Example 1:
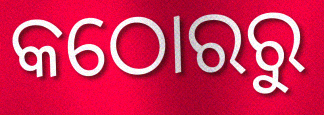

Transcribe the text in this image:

କଠୋରରୁ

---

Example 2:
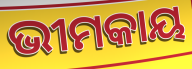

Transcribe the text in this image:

ଭୀମକାୟ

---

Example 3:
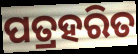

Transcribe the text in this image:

ପତ୍ରହରିତ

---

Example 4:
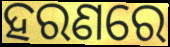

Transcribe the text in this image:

ହରଣରେ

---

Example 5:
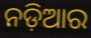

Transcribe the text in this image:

ନଡ଼ିଆର